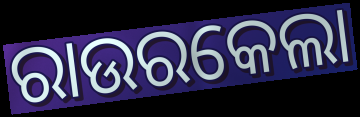
ରାଉରକେଲା